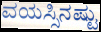
ವಯಸ್ಸಿನಷ್ಟು